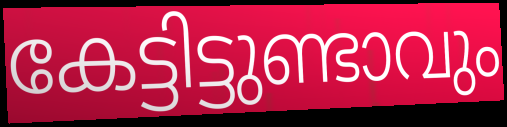
കേട്ടിട്ടുണ്ടാവും